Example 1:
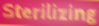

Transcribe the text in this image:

Sterilizing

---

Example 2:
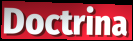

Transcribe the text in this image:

Doctrina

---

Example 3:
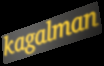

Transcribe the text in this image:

kagalman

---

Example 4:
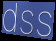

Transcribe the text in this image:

dss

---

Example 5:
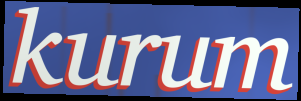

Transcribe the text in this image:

kurum